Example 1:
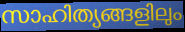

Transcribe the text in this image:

സാഹിത്യങ്ങളിലും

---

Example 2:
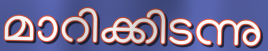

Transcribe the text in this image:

മാറിക്കിടന്നു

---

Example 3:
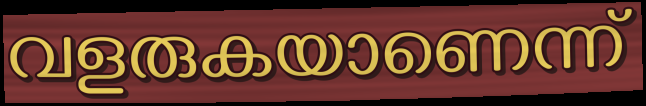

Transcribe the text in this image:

വളരുകയാണെന്ന്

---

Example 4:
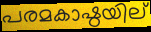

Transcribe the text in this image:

പരമകാഷ്ഠയില്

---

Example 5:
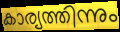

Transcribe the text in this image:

കാര്യത്തിന്നും